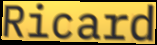
Ricard